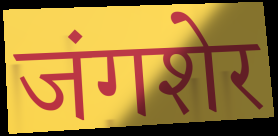
जंगशेर